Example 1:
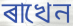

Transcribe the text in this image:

ৰাখেন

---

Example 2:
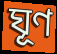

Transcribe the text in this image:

ঘূণ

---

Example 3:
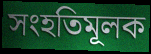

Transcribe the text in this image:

সংহতিমূলক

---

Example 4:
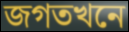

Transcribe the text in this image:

জগতখনে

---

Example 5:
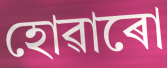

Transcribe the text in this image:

হোৱাৰো